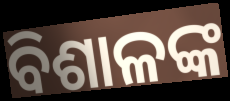
ବିଶାଳଙ୍କ